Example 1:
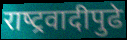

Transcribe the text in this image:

राष्ट्रवादीपुढे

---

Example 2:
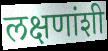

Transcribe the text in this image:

लक्षणांशी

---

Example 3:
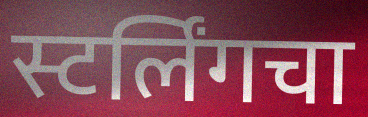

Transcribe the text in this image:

स्टर्लिंगचा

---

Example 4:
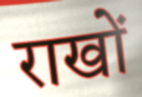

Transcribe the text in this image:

राखों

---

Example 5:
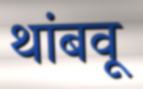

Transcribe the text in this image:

थांबवू